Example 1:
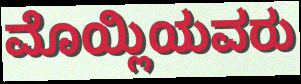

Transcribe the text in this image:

ಮೊಯ್ಲಿಯವರು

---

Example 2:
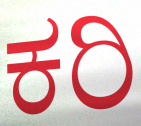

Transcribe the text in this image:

ಕರಿ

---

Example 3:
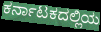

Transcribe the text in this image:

ಕರ್ನಾಟಕದಲ್ಲಿಯ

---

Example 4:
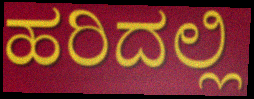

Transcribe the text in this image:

ಹರಿದಲ್ಲಿ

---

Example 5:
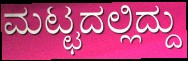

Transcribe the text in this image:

ಮಟ್ಟದಲ್ಲಿದ್ದು